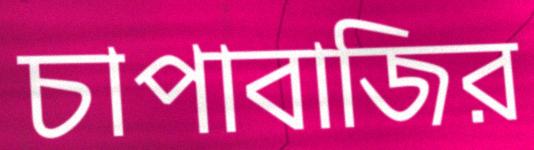
চাপাবাজির